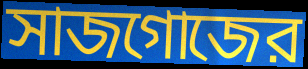
সাজগোজের